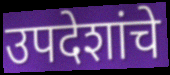
उपदेशांचे